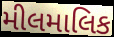
મીલમાલિક